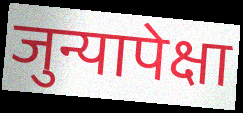
जुन्यापेक्षा